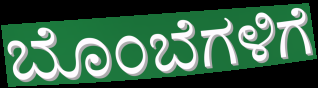
ಬೊಂಬೆಗಳಿಗೆ